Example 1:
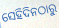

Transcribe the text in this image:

ସେହିଦିନଠାରୁ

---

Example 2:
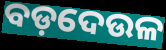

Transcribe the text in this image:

ବଡ଼ଦେଉଳ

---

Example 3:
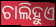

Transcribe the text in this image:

ଚାଲିହୁଏ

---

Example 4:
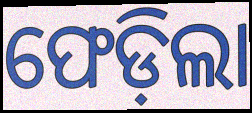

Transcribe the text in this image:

ଫେଡ଼ିଲା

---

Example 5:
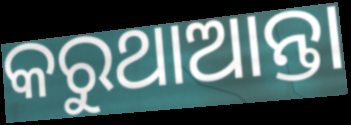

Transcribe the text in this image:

କରୁଥାଆନ୍ତା